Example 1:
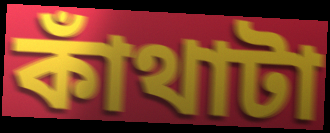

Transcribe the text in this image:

কাঁথাটা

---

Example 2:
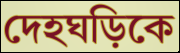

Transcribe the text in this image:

দেহঘড়িকে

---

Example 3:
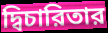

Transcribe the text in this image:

দ্বিচারিতার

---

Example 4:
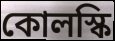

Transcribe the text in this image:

কোলস্কি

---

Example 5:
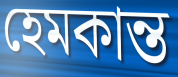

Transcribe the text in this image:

হেমকান্ত